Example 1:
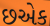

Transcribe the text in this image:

છએક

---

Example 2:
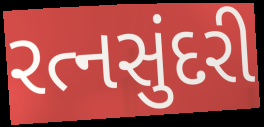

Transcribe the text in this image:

રત્નસુંદરી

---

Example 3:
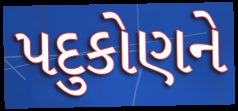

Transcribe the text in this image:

પદુકોણને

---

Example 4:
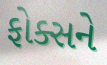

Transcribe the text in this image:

ફોક્સને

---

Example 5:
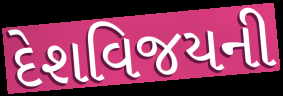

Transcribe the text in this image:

દેશવિજયની